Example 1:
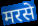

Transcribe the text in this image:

मरसे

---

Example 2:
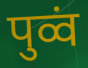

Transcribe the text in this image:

पुव्वं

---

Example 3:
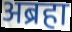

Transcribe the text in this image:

अब्रहा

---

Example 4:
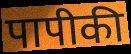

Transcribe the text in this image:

पापीकी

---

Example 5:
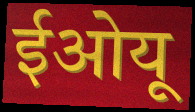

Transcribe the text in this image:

ईओयू